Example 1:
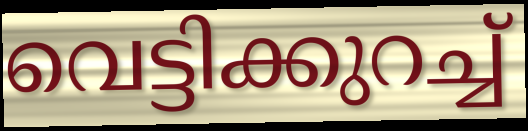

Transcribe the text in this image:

വെട്ടിക്കുറച്ച്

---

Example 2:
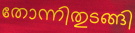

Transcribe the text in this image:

തോന്നിതുടങ്ങി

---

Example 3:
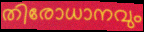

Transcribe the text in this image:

തിരോധാനവും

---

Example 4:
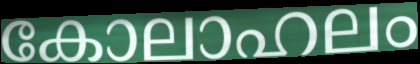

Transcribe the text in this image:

കോലാഹലം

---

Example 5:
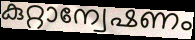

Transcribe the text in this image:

കുറ്റാന്വേഷണം